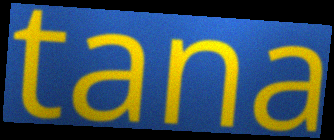
tana